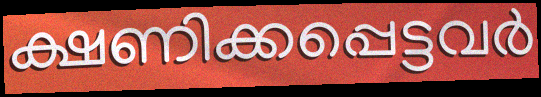
ക്ഷണിക്കപ്പെട്ടവർ